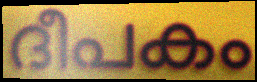
ദീപകം